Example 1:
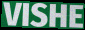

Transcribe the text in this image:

VISHE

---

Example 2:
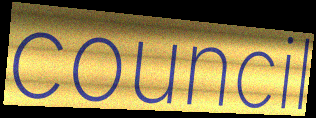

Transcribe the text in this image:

council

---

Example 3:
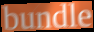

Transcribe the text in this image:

bundle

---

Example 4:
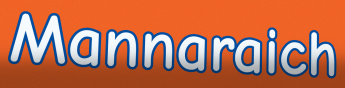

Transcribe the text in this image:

Mannaraich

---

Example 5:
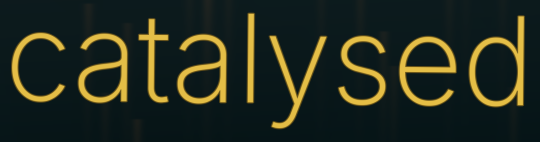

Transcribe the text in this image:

catalysed